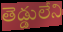
తెడ్డులేని